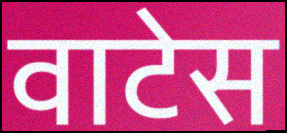
वाटेस